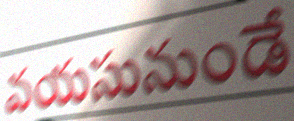
వయసునుండే